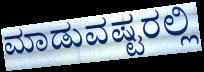
ಮಾಡುವಷ್ಟರಲ್ಲಿ